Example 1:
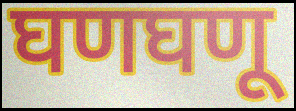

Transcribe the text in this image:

घणघणू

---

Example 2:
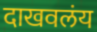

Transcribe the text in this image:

दाखवलंय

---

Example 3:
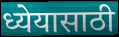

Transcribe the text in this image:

ध्येयासाठी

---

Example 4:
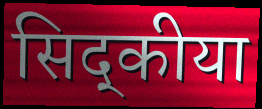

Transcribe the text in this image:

सिद्‌कीया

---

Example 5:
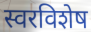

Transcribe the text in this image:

स्वरविशेष